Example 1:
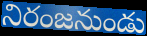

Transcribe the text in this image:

నిరంజనుండు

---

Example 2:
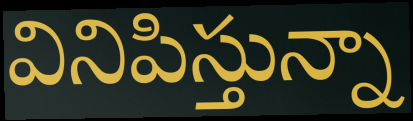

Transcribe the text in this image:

వినిపిస్తున్నా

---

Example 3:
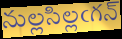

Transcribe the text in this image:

నుల్లసిల్లఁగన్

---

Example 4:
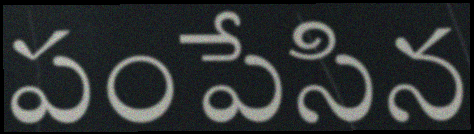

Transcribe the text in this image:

పంపేసిన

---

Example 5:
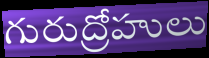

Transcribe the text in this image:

గురుద్రోహులు